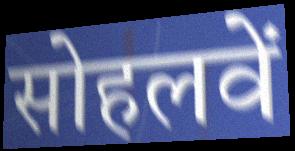
सोहलवें